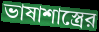
ভাষাশাস্ত্রের